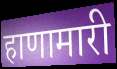
हाणामारी